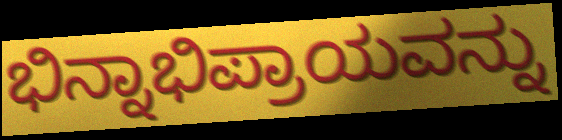
ಭಿನ್ನಾಭಿಪ್ರಾಯವನ್ನು